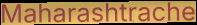
Maharashtrache